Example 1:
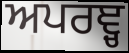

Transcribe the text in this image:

ਅਪਰਞ੍ਚ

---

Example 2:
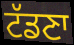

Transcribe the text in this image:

ਟੱਡਣਾ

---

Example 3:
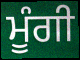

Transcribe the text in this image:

ਮੂੰਗੀ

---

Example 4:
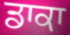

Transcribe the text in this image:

ਡਾਕਾ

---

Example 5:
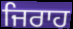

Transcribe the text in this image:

ਜਿਰਾਹ